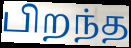
பிறந்த